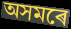
অসমৰে